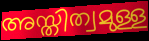
അസ്തിത്വമുള്ള